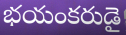
భయంకరుడై